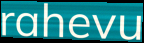
rahevu